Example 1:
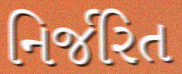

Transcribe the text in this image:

નિર્જરિત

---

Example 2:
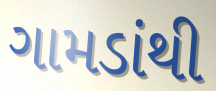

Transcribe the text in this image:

ગામડાંથી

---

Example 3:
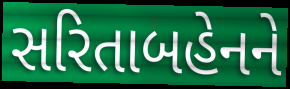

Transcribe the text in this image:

સરિતાબહેનને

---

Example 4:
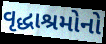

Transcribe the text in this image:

વૃદ્ધાશ્રમોનો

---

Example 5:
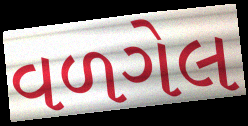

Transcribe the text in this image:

વળગેલ